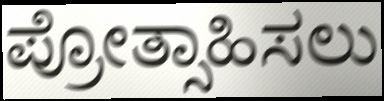
ಪ್ರೋತ್ಸಾಹಿಸಲು